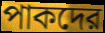
পাকদের